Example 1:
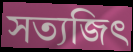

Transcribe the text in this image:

সত্যজিৎ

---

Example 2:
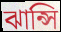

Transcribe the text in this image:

ঝান্সি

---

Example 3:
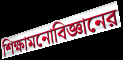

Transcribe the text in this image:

শিক্ষামনোবিজ্ঞানের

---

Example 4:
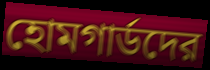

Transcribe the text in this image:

হোমগার্ডদের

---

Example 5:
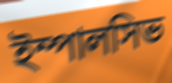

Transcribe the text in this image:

ইম্পালসিভ